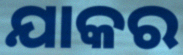
ଯାକର